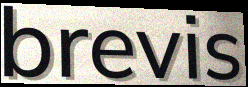
brevis